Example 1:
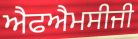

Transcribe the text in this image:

ਐਫਐਮਸੀਜੀ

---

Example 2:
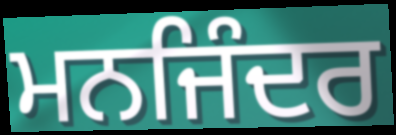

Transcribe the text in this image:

ਮਨਜਿੰਦਰ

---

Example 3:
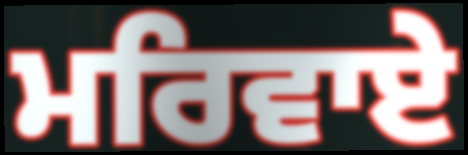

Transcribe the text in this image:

ਮਰਿਵਾਏ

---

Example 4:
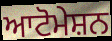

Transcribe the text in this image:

ਆਟੋਮੇਸ਼ਨ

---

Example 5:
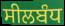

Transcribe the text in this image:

ਸੀਲਬੰਧ